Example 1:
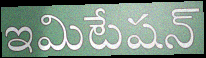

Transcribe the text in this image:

ఇమిటేషన్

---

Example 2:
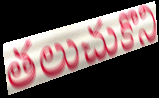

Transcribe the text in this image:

తలుచుకొని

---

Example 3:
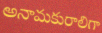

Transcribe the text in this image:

అనామకురాలిగా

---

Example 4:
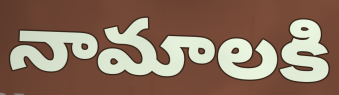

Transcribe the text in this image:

నామాలకి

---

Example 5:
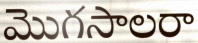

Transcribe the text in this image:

మొగసాలరా